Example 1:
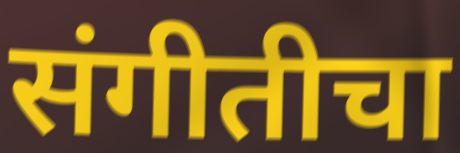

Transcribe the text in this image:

संगीतीचा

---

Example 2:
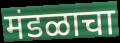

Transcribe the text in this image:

मंडळाचा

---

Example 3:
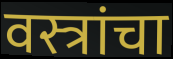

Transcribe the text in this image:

वस्त्रांचा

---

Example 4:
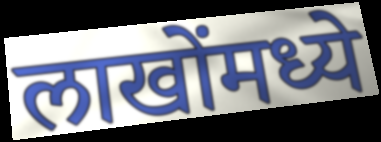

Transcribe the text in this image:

लाखोंमध्ये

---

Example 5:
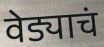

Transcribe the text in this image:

वेड्याचं